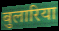
बुलारिया